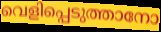
വെളിപ്പെടുത്താനോ